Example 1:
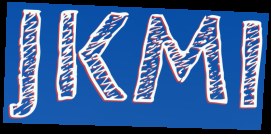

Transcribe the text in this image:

JKMI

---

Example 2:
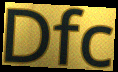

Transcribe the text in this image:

Dfc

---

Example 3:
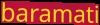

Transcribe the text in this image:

baramati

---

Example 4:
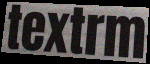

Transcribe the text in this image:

textrm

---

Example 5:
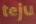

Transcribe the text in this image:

teju